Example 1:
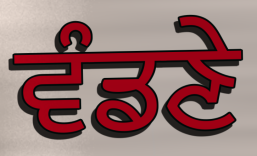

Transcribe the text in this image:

ਵੰਡਣੇ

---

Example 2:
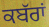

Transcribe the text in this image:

ਕਬੱਰਾਂ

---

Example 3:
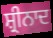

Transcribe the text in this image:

ਸ਼੍ਰੀਨਾਦ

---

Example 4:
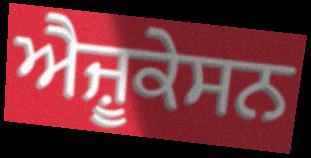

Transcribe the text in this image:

ਐਜ਼ੂਕੇਸਨ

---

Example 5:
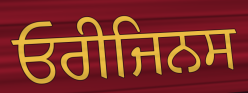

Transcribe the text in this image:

ਓਰੀਜਿਨਸ